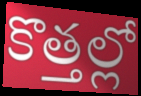
కొత్తల్లో